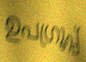
ഉപഗ്രൂപ്പ്